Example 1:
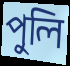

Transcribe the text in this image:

পুলি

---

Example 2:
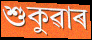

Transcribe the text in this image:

শুকুৱাৰ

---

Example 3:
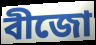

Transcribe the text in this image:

বীজো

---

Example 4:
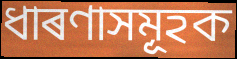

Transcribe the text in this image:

ধাৰণাসমূহক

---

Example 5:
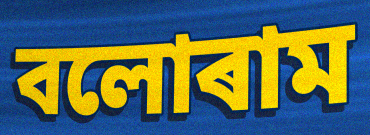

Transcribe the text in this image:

বলোৰাম